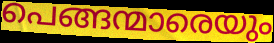
പെങ്ങന്മാരെയും